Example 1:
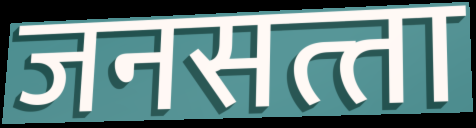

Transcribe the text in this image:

जनसत्‍ता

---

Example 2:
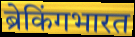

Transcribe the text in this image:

ब्रेकिंगभारत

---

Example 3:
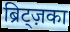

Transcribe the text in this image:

ब्रिट्ज़का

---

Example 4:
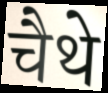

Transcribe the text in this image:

चैथे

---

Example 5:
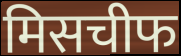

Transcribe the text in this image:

मिसचीफ